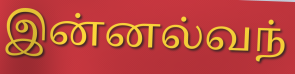
இன்னல்வந்